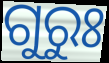
ଗୁରୁଃ